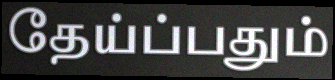
தேய்ப்பதும்